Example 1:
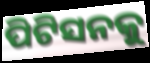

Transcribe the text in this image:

ପିଟିସନକୁ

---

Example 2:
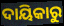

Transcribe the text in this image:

ଦାୟିକାରୁ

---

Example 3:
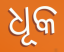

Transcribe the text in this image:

ଧୂକ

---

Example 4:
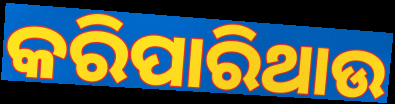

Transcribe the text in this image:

କରିପାରିଥାଉ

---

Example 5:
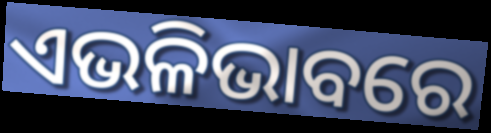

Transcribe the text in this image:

ଏଭଳିଭାବରେ